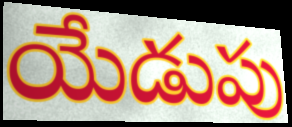
యేడుపు